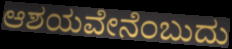
ಆಶಯವೇನೆಂಬುದು